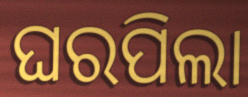
ଘରପିଲା